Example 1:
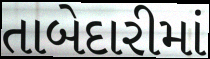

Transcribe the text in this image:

તાબેદારીમાં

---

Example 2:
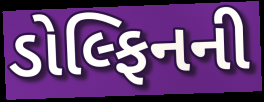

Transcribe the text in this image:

ડોલ્ફિનની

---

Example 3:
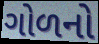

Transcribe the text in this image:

ગોળનો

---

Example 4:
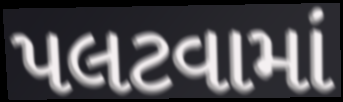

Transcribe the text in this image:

પલટવામાં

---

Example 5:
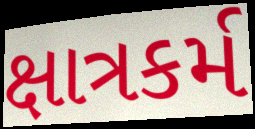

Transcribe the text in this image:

ક્ષાત્રકર્મ